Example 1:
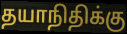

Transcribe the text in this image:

தயாநிதிக்கு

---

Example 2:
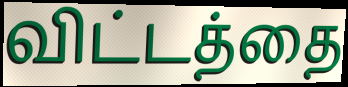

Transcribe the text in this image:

விட்டத்தை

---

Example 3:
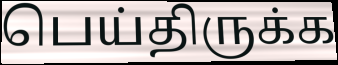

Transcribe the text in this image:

பெய்திருக்க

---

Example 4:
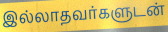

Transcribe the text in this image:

இல்லாதவர்களுடன்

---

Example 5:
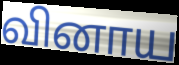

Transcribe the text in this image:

வினாய